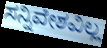
ಸನ್ನಿವೇಶವಿಲ್ಲ